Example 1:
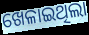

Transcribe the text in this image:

ଖେଳାଇଥିଲା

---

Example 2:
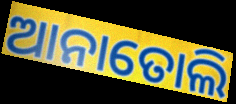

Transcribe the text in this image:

ଆନାତୋଲି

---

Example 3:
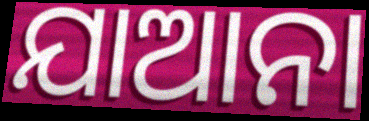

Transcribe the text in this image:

ଯାଆନା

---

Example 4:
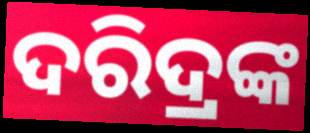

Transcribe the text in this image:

ଦରିଦ୍ରଙ୍କ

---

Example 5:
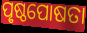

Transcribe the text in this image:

ପୃଷ୍ଠପୋଷତା